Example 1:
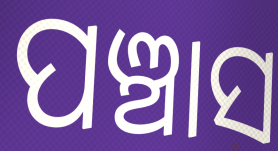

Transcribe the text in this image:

ପଞ୍ଚାସ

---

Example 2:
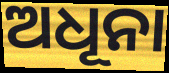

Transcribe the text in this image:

ଅଧୂନା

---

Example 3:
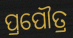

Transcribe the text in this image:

ପ୍ରପୌତ୍ର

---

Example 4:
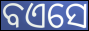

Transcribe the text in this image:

ବଏସେ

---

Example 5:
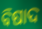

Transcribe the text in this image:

ବିଷାଦ